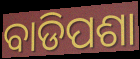
ବାଡିପଶା